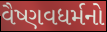
વૈષ્ણવધર્મનો